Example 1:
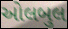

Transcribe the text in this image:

ઓલબુલ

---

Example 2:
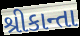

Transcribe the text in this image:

શ્રીકાન્તા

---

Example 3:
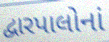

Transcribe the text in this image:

દ્વારપાલોનાં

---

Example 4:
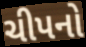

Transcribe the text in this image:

ચીપનો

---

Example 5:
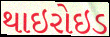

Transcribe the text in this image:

થાઇરોઇડ